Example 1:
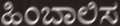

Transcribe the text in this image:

ಹಿಂಬಾಲಿಸ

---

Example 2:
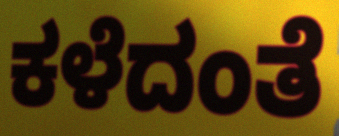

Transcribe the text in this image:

ಕಳೆದಂತೆ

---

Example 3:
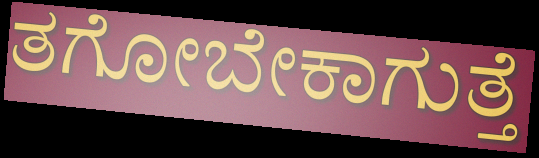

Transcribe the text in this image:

ತಗೋಬೇಕಾಗುತ್ತೆ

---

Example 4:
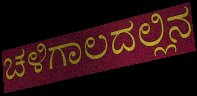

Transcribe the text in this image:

ಚಳಿಗಾಲದಲ್ಲಿನ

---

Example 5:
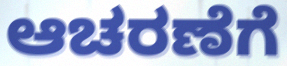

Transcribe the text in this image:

ಆಚರಣೆಗೆ